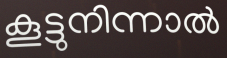
കൂട്ടുനിന്നാൽ